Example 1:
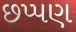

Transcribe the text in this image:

છપ્પણ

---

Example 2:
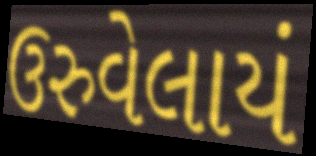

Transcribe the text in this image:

ઉરુવેલાયં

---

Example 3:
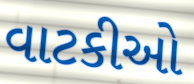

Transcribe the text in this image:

વાટકીઓ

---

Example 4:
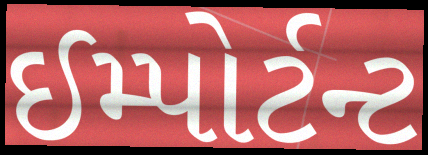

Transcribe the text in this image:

ઈમ્પોર્ટન્ટ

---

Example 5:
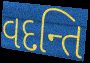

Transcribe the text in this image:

વદન્તિ